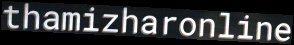
thamizharonline